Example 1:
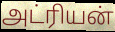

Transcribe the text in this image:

அட்ரியன்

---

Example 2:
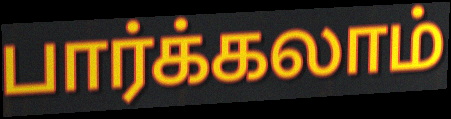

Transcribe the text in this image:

பார்க்கலாம்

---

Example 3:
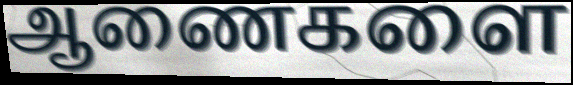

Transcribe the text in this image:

ஆணைகளை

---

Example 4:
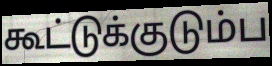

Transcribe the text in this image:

கூட்டுக்குடும்ப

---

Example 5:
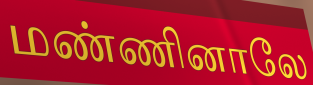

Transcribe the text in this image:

மண்ணினாலே